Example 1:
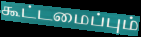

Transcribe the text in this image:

கூட்டமைப்பும்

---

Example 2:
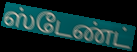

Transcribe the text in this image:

ஸ்டேண்ட்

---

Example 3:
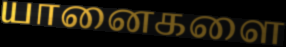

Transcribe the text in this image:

யானைகளை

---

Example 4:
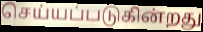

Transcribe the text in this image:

செய்யப்படுகின்றது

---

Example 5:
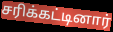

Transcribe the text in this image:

சரிக்கட்டினார்